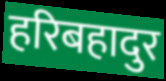
हरिबहादुर